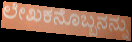
ಲೇಖಕನೊಬ್ಬನನ್ನು